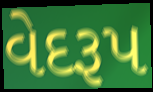
વેદરૂપ